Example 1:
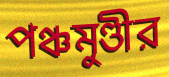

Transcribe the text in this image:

পঞ্চমুণ্ডীর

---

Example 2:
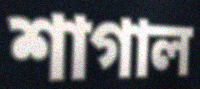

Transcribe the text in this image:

শাগাল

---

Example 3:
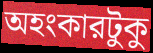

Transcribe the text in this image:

অহংকারটুকু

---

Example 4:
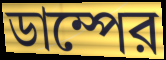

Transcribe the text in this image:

ডাম্পের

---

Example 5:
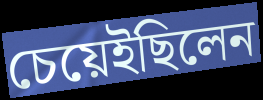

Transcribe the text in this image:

চেয়েইছিলেন